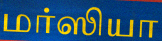
மர்ஸியா